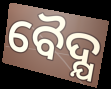
ବୈଦ୍ଯ